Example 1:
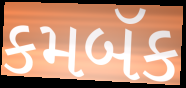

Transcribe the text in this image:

કમબૅક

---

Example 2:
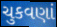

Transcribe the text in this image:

ચુકવણાં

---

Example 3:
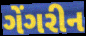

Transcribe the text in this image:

ગેંગરીન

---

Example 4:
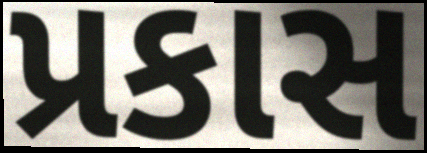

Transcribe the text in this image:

પ્રકાસ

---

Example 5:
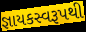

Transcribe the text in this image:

જ્ઞાયકસ્વરૂપથી